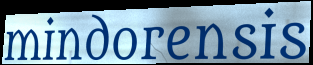
mindorensis